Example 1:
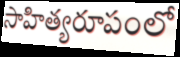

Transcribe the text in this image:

సాహిత్యరూపంలో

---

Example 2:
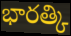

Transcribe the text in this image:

భారత్కి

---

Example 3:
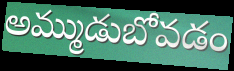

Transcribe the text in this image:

అమ్ముడుబోవడం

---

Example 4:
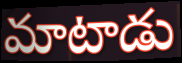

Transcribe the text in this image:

మాటాడు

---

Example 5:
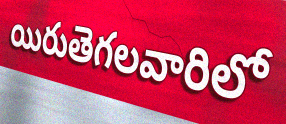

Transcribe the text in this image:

యిరుతెగలవారిలో